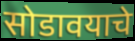
सोडावयाचे